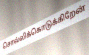
சொல்லிக்கொடுக்கிறேன்